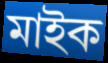
মাইক